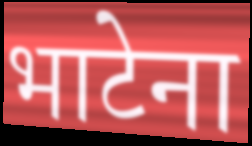
भाटेना